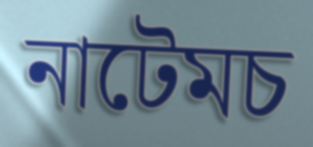
নাটেমচ